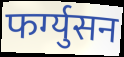
फर्ग्युसन